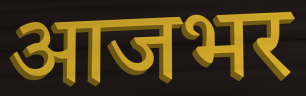
आजभर